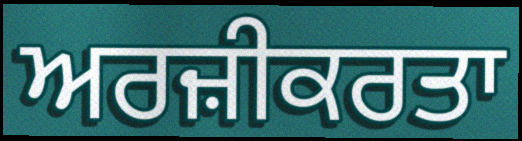
ਅਰਜ਼ੀਕਰਤਾ